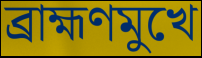
ব্রাহ্মণমুখে